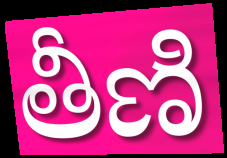
తీణి